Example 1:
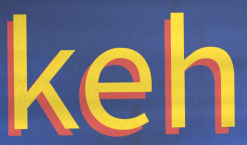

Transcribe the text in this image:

keh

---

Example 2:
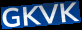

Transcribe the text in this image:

GKVK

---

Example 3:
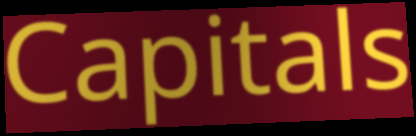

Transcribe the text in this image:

Capitals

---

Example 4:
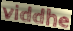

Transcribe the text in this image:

viddhe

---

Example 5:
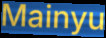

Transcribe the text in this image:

Mainyu